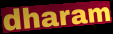
dharam